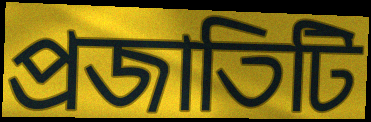
প্রজাতিটি